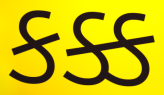
કક્ક